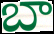
బా